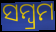
ସମ୍ବ୍ରମ